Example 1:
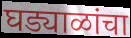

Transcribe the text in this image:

घड्याळांचा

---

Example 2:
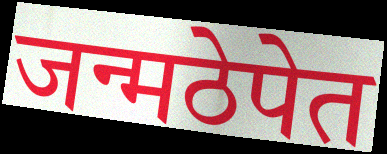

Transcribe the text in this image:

जन्मठेपेत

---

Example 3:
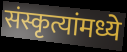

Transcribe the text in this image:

संस्कृत्यांमध्ये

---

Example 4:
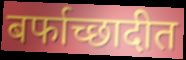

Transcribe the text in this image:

बर्फाच्छादीत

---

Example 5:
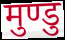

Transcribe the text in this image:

मुण्डु